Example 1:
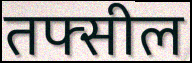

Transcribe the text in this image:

तफ्सील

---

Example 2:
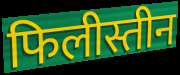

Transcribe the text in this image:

फिलीस्तीन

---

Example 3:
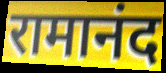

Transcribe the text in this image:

रामानंद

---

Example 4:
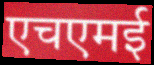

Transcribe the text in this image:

एचएमई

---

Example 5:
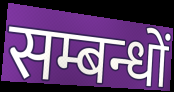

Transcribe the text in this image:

सम्बन्धों